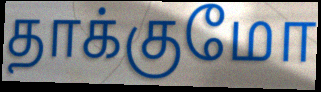
தாக்குமோ